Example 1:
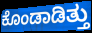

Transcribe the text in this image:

ಕೊಂಡಾಡಿತ್ತು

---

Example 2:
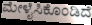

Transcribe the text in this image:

ಮೇಳೈಸಿಕೊಂಡಿದೆ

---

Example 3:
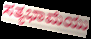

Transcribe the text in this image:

ಸತ್ಯಭಾಮೆಯು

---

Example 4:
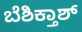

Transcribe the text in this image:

ಬೆಶಿಕ್ತಾಶ್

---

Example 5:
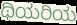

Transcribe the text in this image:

ಥಿಯರಿಯ